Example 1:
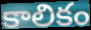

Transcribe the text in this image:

కాలికం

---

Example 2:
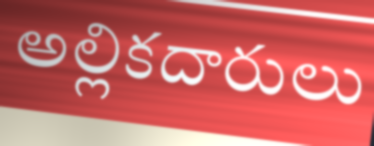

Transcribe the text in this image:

అల్లికదారులు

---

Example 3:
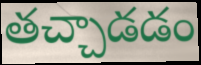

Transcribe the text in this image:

తచ్చాడడం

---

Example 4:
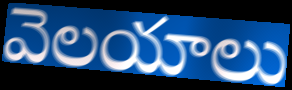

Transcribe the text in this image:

వెలయాలు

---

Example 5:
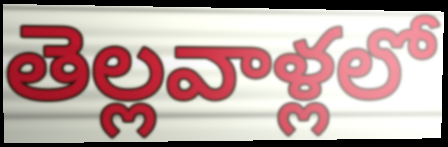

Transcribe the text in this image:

తెల్లవాళ్లలో